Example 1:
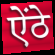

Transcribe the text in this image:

ऐंठे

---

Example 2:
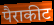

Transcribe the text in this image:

पैराकीट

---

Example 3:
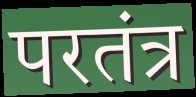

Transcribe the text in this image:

परतंत्र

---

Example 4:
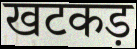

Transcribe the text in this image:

खटकड़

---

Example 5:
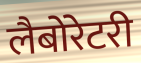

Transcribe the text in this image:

लैबोरेटरी